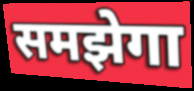
समझेगा